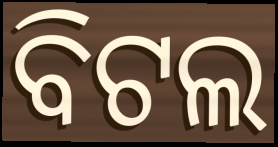
ବିଟଲ